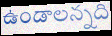
ఉండాలన్నది